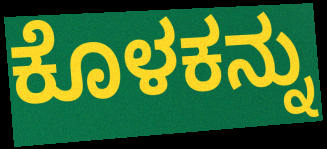
ಕೊಳಕನ್ನು